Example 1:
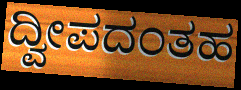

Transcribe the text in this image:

ದ್ವೀಪದಂತಹ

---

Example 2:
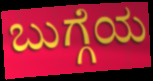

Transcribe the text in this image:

ಬುಗ್ಗೆಯ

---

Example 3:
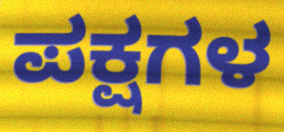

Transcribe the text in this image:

ಪಕ್ಷಗಳ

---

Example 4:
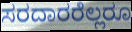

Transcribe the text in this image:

ಸರದಾರರೆಲ್ಲರೂ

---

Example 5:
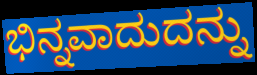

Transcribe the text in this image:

ಭಿನ್ನವಾದುದನ್ನು